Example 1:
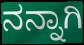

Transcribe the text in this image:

ನನ್ನಾಗಿ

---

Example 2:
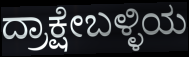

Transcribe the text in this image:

ದ್ರಾಕ್ಷೇಬಳ್ಳಿಯ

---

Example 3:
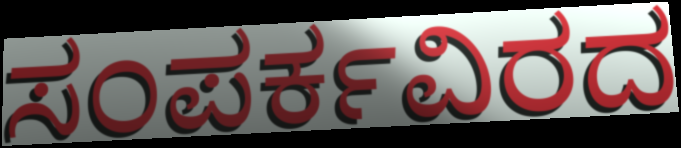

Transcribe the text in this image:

ಸಂಪರ್ಕವಿರದ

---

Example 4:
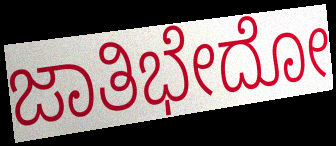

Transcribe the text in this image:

ಜಾತಿಭೇದೋ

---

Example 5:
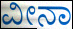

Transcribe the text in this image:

ವೀನಾ